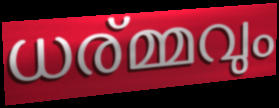
ധര്മ്മവും